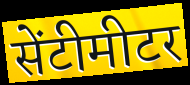
सेंटीमीटर